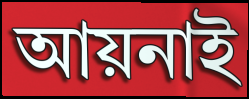
আয়নাই